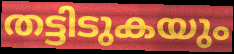
തട്ടിടുകയും